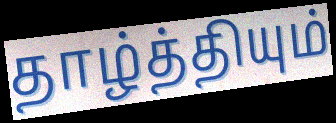
தாழ்த்தியும்